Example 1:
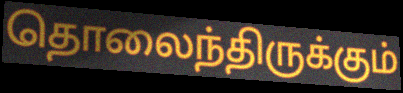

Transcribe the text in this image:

தொலைந்திருக்கும்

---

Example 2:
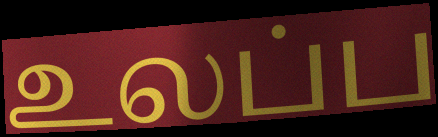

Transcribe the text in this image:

உலப்ப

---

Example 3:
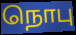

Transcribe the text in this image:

நொபு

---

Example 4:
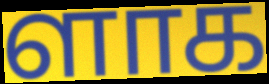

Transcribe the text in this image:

ளாக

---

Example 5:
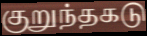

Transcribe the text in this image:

குறுந்தகடு